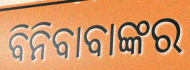
ବିନିବାବାଙ୍କର